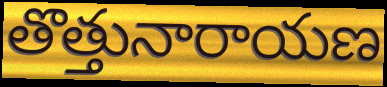
తొత్తునారాయణ